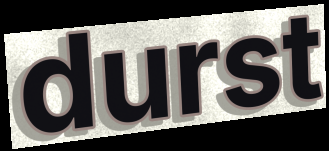
durst